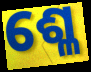
ଶ୍ଳେ